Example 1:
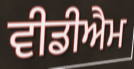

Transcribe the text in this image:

ਵੀਡੀਐਮ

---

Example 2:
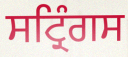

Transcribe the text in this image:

ਸਟ੍ਰਿੰਗਸ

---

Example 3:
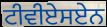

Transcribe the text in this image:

ਟੀਵੀਏਸਏਨ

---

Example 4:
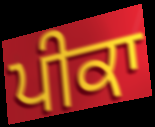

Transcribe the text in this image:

ਪੀਕਾ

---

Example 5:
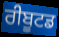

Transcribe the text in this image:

ਰੀਬੂਟਡ